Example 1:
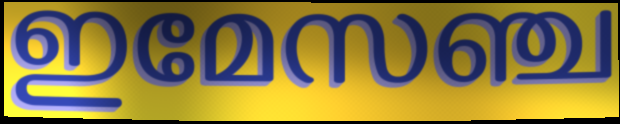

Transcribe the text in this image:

ഇമേസഞ്ച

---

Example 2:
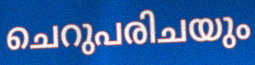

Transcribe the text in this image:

ചെറുപരിചയും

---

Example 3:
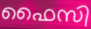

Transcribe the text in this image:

ഫൈസി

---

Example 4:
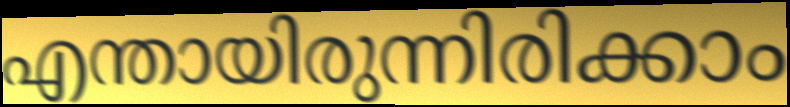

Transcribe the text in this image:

എന്തായിരുന്നിരിക്കാം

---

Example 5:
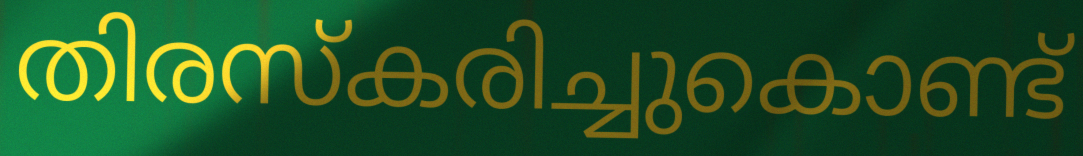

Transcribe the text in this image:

തിരസ്കരിച്ചുകൊണ്ട്